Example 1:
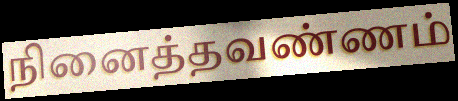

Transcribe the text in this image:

நினைத்தவண்ணம்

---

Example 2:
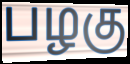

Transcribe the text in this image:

பழகு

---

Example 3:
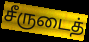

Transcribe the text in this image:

சீருடைத்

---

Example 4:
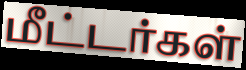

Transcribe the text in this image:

மீட்டர்கள்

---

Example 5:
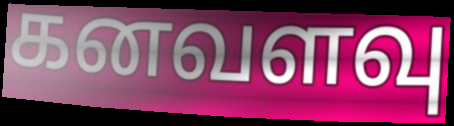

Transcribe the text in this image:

கனவளவு